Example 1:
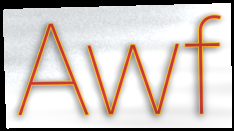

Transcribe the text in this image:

Awf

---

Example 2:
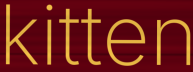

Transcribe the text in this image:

kitten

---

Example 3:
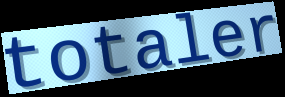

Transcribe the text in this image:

totaler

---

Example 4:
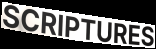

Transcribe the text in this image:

SCRIPTURES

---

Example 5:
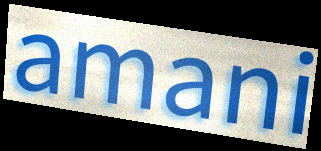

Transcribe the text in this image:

amani